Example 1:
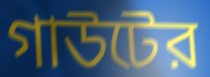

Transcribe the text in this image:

গাউটের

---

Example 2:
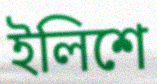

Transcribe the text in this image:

ইলিশে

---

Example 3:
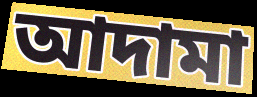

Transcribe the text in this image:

আদামা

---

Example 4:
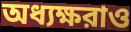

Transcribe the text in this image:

অধ্যক্ষরাও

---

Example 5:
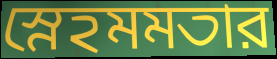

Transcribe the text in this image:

স্নেহমমতার